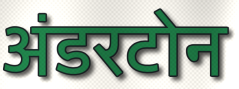
अंडरटोन